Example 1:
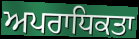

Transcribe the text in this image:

ਅਪਰਾਧਿਕਤਾ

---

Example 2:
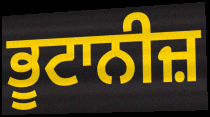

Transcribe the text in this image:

ਭੂਟਾਨੀਜ਼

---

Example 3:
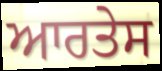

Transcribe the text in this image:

ਆਰਤੇਸ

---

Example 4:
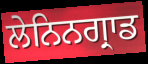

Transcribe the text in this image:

ਲੇਨਿਨਗ੍ਰਾਡ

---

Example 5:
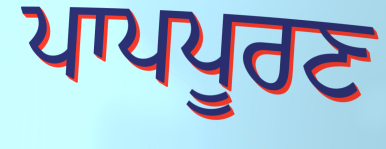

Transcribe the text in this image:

ਪਾਪਪੂਰਣ